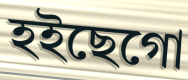
হইছেগো